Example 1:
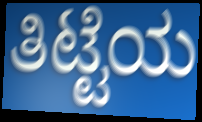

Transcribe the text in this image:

ತಿಟ್ಟೆಯ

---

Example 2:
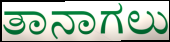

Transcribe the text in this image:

ತಾನಾಗಲು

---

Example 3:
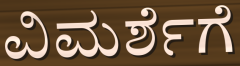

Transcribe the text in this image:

ವಿಮರ್ಶೆಗೆ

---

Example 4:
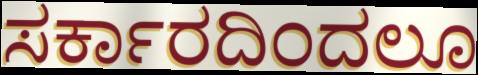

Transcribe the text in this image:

ಸರ್ಕಾರದಿಂದಲೂ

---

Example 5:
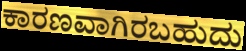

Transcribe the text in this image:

ಕಾರಣವಾಗಿರಬಹುದು